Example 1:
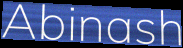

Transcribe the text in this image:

Abinash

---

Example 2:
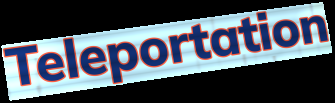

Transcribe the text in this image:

Teleportation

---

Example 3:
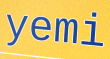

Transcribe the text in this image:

yemi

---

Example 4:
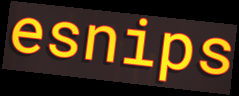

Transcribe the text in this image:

esnips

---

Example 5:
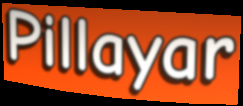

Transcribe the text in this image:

Pillayar